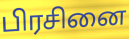
பிரசினை